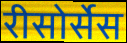
रीसोर्सेस